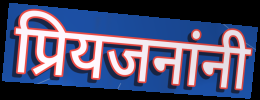
प्रियजनांनी